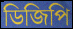
ডিজিপি